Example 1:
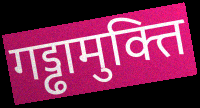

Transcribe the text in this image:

गड्ढामुक्ति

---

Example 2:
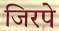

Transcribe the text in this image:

जिरपे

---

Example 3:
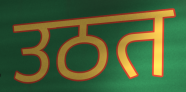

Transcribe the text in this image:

उठत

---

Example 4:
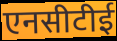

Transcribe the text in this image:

एनसीटीई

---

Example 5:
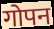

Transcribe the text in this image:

गोपन